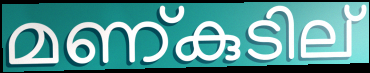
മണ്കുടില്